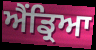
ਐਂਡ੍ਰਿਆ